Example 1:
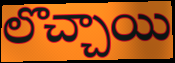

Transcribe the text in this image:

లొచ్చాయి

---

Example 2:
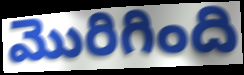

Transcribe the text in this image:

మొరిగింది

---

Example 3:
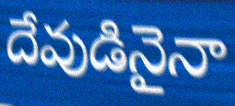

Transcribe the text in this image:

దేవుడినైనా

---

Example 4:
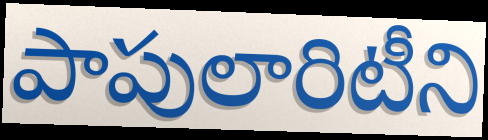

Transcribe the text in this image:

పాపులారిటీని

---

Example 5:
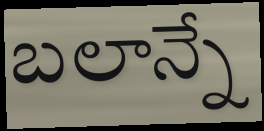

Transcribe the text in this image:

బలాన్నే